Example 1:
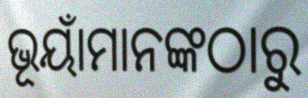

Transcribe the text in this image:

ଭୂୟାଁମାନଙ୍କଠାରୁ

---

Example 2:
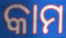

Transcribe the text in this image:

କାମ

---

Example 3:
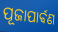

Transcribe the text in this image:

ପୂଜାପାର୍ଵଣ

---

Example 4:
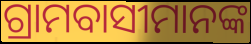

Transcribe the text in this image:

ଗ୍ରାମବାସୀମାନଙ୍କ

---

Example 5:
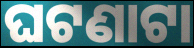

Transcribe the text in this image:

ଘଟଣାଟା